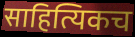
साहित्यिकच